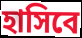
হাসিবে